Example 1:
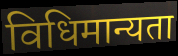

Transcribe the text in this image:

विधिमान्यता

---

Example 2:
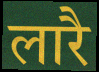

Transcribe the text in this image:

लारै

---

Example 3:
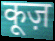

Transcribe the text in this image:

कूज़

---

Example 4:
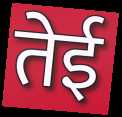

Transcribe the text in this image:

तेई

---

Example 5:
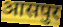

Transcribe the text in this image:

आसपुर